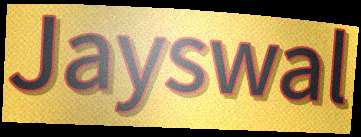
Jayswal